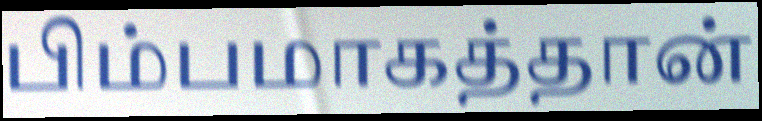
பிம்பமாகத்தான்